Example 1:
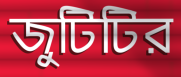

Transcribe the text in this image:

জুটিটির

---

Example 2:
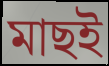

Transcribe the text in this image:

মাছই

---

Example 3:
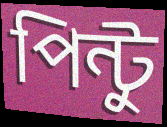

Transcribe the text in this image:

পিন্টু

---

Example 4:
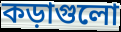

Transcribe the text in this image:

কড়াগুলো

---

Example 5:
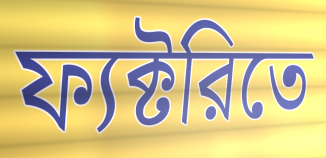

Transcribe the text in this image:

ফ্যক্টরিতে